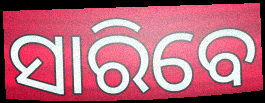
ସାରିବେ